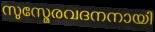
സുസ്മേരവദനനായി